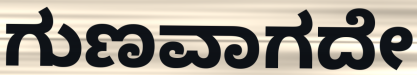
ಗುಣವಾಗದೇ